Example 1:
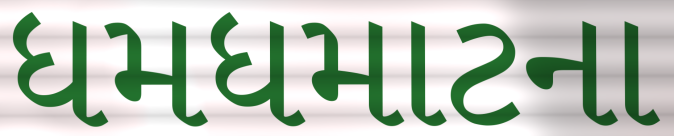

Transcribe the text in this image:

ધમધમાટના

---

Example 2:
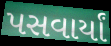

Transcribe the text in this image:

પસવાર્યાં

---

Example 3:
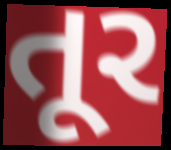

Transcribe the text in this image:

તૂર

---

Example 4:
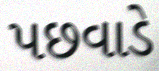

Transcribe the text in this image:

પછવાડે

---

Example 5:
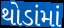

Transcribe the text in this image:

થોડાંમાં